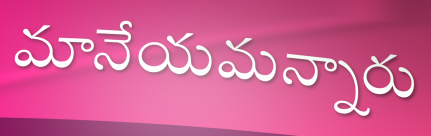
మానేయమన్నారు